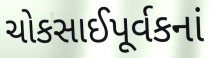
ચોકસાઈપૂર્વકનાં